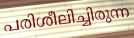
പരിശീലിച്ചിരുന്ന